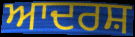
ਆਦਰਸ਼